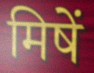
मिषें